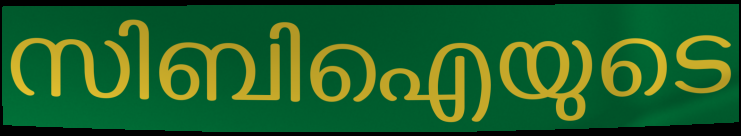
സിബിഐയുടെ